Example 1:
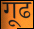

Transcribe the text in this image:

गूढ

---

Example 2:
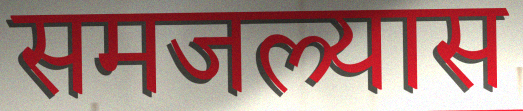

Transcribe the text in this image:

समजल्यास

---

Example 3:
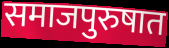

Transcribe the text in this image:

समाजपुरुषात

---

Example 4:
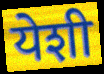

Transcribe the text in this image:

येशी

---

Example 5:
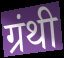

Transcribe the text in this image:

ग्रंथी